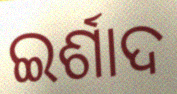
ଇର୍ଶାଦ